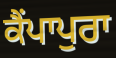
ਕੈਂਪਾਪੁਰਾ